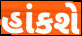
હાંકશે